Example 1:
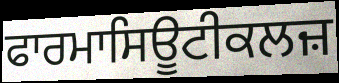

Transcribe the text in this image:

ਫਾਰਮਾਸਿਊਟੀਕਲਜ਼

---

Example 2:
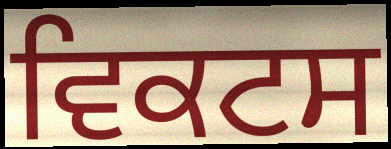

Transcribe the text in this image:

ਵਿਕਟਸ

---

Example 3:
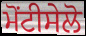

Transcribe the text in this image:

ਮੋਂਟੀਸੇਲੋ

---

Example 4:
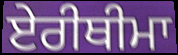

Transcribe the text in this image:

ਏਰੀਥੀਮਾ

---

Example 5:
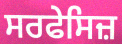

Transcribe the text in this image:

ਸਰਫੇਸਿਜ਼